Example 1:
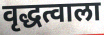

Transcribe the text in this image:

वृद्धत्वाला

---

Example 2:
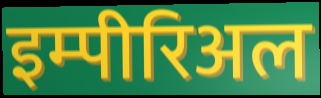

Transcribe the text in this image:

इम्पीरिअल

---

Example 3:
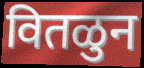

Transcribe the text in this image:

वितळुन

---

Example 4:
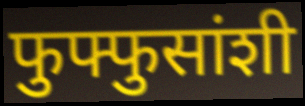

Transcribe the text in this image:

फुफ्फुसांशी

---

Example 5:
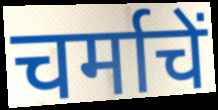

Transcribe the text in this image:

चर्माचें